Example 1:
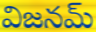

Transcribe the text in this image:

విజనమ్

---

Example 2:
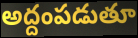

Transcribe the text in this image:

అద్దంపడుతూ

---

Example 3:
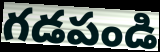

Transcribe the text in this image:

గడపండి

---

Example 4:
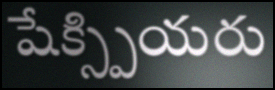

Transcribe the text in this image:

షేక్స్పియరు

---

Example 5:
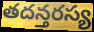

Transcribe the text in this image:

తదన్తరస్య